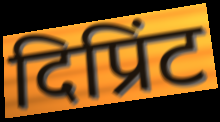
दिप्रिंट